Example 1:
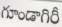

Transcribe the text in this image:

గూండాగిరీ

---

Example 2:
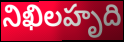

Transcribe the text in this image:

నిఖిలహృది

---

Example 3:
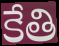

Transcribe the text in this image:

కేతి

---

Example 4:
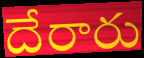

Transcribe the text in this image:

దేరారు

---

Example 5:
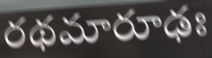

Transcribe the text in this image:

రథమారూఢః